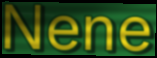
Nene